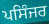
ਪਸਿੰਜਰ